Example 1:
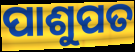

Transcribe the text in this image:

ପାଶୁପତ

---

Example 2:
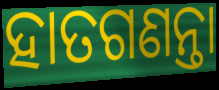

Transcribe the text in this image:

ହାତଗଣନ୍ତା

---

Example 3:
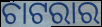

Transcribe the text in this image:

ଚାଟରାର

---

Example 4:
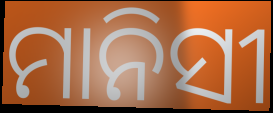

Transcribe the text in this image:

ମାନିସୀ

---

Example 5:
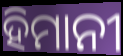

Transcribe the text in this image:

ହିମାନୀ